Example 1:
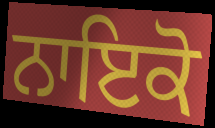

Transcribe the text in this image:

ਨਾਇਕੋ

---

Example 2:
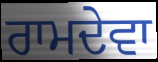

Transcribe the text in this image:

ਰਾਮਦੇਵਾ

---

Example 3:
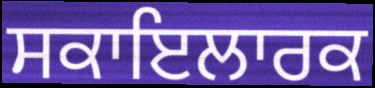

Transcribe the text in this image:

ਸਕਾਇਲਾਰਕ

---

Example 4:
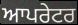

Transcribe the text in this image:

ਆਪਰੇਟਰ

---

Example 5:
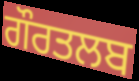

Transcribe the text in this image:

ਗੌਰਤਲਬ